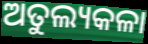
ଅତୁଲ୍ୟକଳା